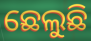
ଛେଲୁଛି